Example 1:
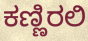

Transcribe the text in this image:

ಕಣ್ಣಿರಲಿ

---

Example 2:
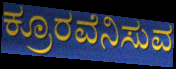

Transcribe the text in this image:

ಕ್ರೂರವೆನಿಸುವ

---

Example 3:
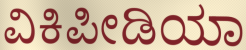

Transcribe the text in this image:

ವಿಕಿಪೀಡಿಯಾ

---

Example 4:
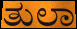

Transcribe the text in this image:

ತುಲಾ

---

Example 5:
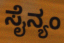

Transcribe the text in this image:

ಸೈನ್ಯಂ